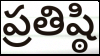
ప్రతిష్ఠి